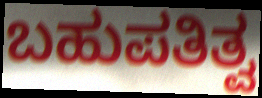
ಬಹುಪತಿತ್ವ